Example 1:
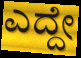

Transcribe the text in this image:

ಎದ್ದೇ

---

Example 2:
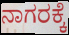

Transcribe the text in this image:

ನಾಗರಕ್ಕೆ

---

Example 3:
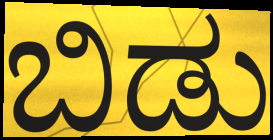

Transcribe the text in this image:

ಬಿಡು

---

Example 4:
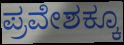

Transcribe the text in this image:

ಪ್ರವೇಶಕ್ಕೂ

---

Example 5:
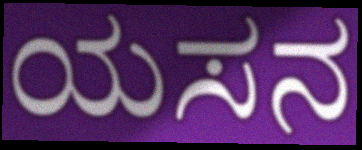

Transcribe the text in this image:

ಯಸನ